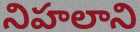
నిహలాని